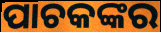
ପାଚକଙ୍କର